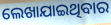
ଲେଖାଯାଇଥିବାର